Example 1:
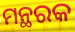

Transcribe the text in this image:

ମନ୍ଥରକ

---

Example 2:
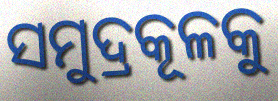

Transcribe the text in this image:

ସମୁଦ୍ରକୂଳକୁ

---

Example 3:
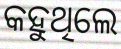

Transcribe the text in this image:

କହୁଥିଲେ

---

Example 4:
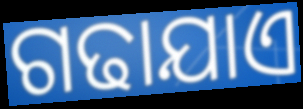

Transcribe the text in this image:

ଗଢାଯାଏ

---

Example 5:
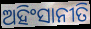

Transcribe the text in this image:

ଅହିଂସାନୀତି